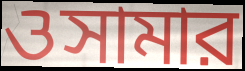
ওসামার